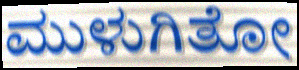
ಮುಳುಗಿತೋ